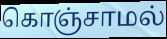
கொஞ்சாமல்